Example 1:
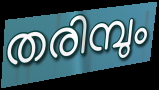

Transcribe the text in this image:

തരിമ്പും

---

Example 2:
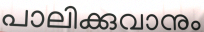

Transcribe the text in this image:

പാലിക്കുവാനും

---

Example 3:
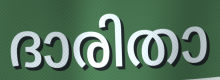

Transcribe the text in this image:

ദാരിതാ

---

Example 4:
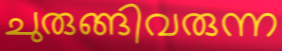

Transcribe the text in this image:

ചുരുങ്ങിവരുന്ന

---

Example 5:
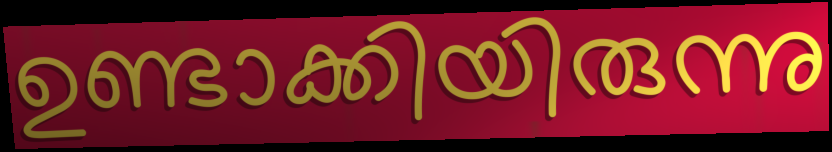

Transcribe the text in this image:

ഉണ്ടാക്കിയിരുന്നു